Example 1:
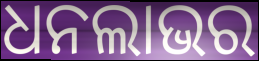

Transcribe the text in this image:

ଧନଲାଭର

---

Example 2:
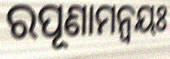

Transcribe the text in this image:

ରପୂଣାମନ୍ଵୟଃ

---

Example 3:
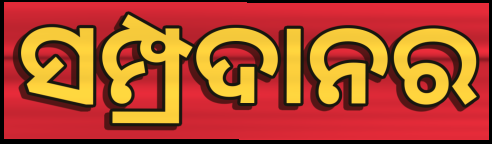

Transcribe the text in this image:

ସମ୍ପ୍ରଦାନର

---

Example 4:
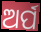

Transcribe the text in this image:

ଅର୍ପ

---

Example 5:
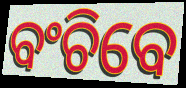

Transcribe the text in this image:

ବଂଚିବେ